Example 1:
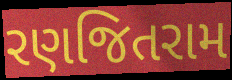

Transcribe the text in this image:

રણજિતરામ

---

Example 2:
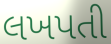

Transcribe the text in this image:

લખપતી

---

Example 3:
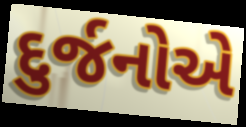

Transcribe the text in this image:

દુર્જનોએ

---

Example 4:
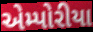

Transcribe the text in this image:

એમ્પોરીયા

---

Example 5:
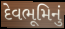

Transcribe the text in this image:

દેવભૂમિનું